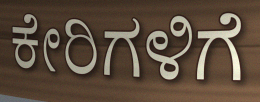
ಕೇರಿಗಳಿಗೆ